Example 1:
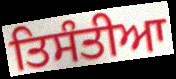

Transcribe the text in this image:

ਤਿਸੰਤੀਆ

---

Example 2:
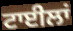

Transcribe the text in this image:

ਟਾਈਲਾਂ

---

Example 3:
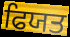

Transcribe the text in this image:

ਫਿਯਤ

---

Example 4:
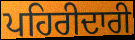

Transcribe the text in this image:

ਪਹਿਰੀਦਾਰੀ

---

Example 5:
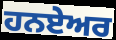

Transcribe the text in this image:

ਹਨਏਅਰ